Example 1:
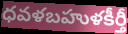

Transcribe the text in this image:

ధవళబహుళకీర్తీ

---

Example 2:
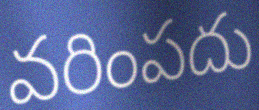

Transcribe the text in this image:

వరింపదు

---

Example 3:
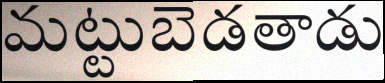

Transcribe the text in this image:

మట్టుబెడతాడు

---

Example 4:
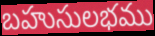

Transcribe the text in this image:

బహుసులభము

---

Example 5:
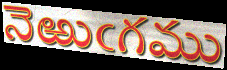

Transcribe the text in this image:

నెఱుఁగము